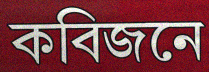
কবিজনে